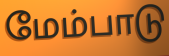
மேம்பாடு